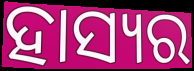
ହାସ୍ୟର